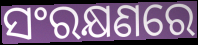
ସଂରକ୍ଷଣରେ